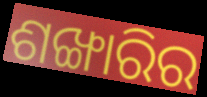
ଶଙ୍ଖାରିର